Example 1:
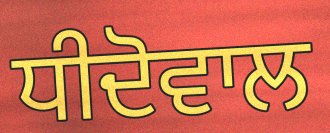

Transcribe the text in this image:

ਧੀਦੋਵਾਲ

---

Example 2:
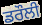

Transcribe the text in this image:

ਡਰੌਲੀ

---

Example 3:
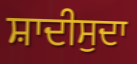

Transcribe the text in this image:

ਸ਼ਾਦੀਸੁਦਾ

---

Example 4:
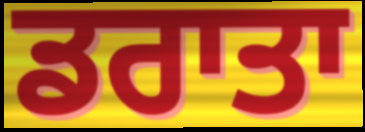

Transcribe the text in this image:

ਡਰਾਤਾ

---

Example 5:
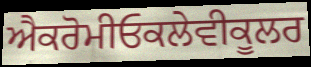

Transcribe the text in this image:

ਐਕਰੋਮੀਓਕਲੇਵੀਕੂਲਰ